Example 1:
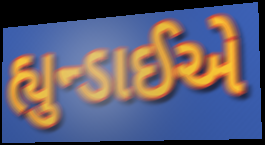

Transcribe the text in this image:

હ્યુન્ડાઈએ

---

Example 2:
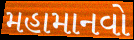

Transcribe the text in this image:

મહામાનવો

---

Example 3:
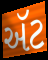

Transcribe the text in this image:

ઍટ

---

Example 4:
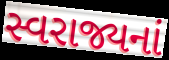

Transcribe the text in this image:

સ્વરાજ્યનાં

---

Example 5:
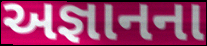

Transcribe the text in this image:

અજ્ઞાનના